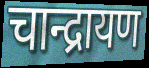
चान्द्रायण